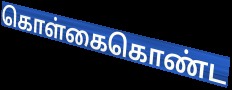
கொள்கைகொண்ட